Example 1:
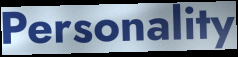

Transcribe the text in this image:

Personality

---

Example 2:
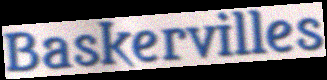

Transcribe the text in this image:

Baskervilles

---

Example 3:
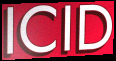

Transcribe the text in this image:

ICID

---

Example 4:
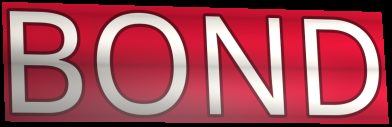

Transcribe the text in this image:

BOND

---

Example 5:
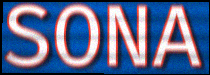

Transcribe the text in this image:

SONA